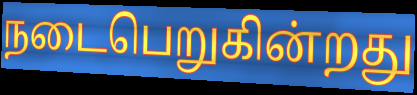
நடைபெறுகின்றது